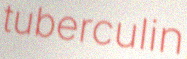
tuberculin